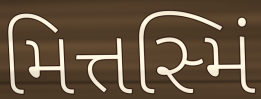
મિત્તસ્મિં